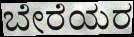
ಬೇರೆಯರ